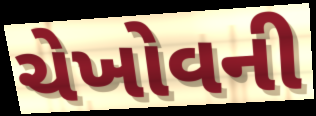
ચેખોવની